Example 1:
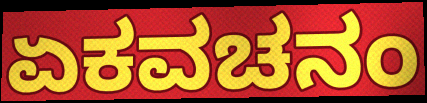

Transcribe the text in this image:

ಏಕವಚನಂ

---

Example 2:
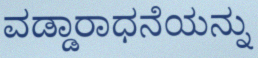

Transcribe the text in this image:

ವಡ್ಡಾರಾಧನೆಯನ್ನು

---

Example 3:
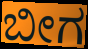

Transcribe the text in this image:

ಬೀಗ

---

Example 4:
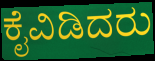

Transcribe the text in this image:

ಕೈವಿಡಿದರು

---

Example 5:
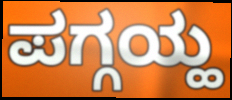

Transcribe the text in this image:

ಪಗ್ಗಯ್ಹ